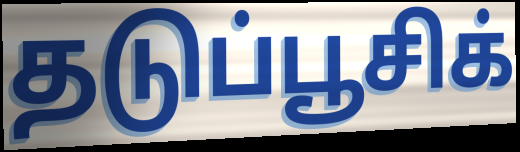
தடுப்பூசிக்